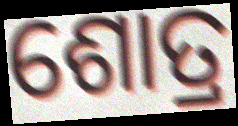
ଶୋତ୍ର